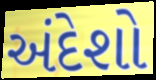
અંદેશો